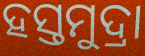
ହସ୍ତମୁଦ୍ରା